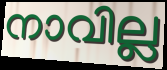
നാവില്ല